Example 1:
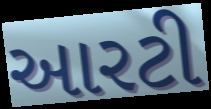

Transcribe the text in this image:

આરટી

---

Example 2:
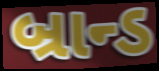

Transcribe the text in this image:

બ્રાન્ડ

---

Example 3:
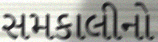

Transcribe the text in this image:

સમકાલીનો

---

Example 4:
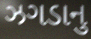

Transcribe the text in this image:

ઝગડાનુ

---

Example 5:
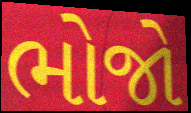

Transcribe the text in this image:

ભોજો